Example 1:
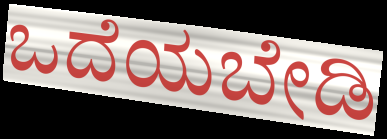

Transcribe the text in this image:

ಒದೆಯಬೇಡಿ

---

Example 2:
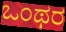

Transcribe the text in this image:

ಒಂಥರ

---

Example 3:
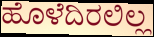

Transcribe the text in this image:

ಹೊಳೆದಿರಲಿಲ್ಲ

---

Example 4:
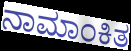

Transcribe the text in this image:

ನಾಮಾಂಕಿತ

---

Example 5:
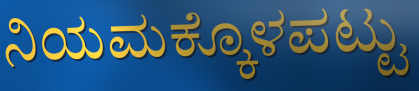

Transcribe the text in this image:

ನಿಯಮಕ್ಕೊಳಪಟ್ಟು